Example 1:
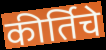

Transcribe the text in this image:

कीर्तिचे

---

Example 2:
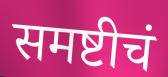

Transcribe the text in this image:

समष्टीचं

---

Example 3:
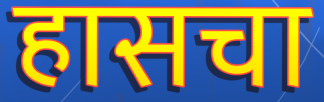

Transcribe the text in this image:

हासचा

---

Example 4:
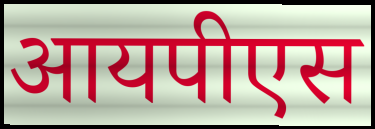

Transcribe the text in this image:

आयपीएस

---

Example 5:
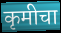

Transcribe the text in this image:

कृमीचा